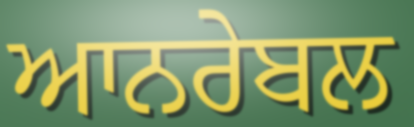
ਆਨਰੇਬਲ